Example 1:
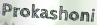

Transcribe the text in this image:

Prokashoni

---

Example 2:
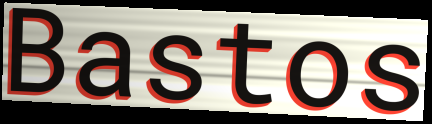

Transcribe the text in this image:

Bastos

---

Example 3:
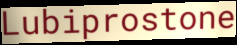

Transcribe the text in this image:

Lubiprostone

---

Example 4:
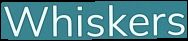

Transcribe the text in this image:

Whiskers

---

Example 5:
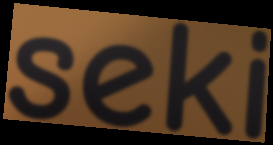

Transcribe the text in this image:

seki